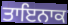
ਤਾਇਨਾਕ